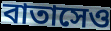
বাতাসেও